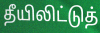
தீயிலிட்டுத்